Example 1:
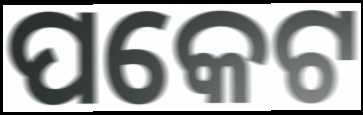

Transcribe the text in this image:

ପକେଟ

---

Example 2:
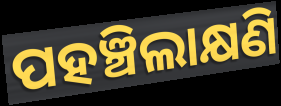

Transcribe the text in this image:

ପହଞ୍ଚିଲାକ୍ଷଣି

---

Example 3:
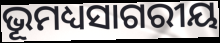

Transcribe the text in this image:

ଭୂମଧ୍ୟସାଗରୀୟ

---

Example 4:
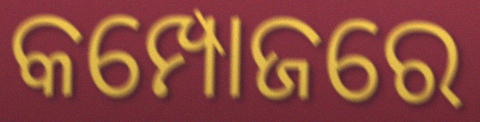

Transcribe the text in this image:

କମ୍ପୋଜରେ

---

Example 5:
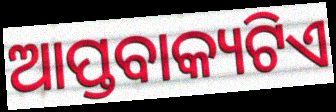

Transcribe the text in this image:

ଆପ୍ତବାକ୍ୟଟିଏ